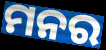
ମନର